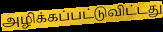
அழிக்கப்பட்டுவிட்டது